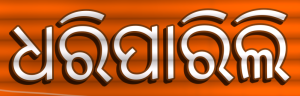
ଧରିପାରିଲି